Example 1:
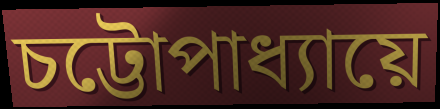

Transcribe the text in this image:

চট্টোপাধ্যায়ে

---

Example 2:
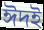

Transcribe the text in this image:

ঈদই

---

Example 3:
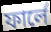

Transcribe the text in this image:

ফার্লে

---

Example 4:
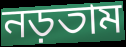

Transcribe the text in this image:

নড়তাম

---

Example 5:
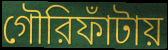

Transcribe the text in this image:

গৌরিফাঁটায়